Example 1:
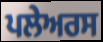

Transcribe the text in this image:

ਪਲੇਅਰਸ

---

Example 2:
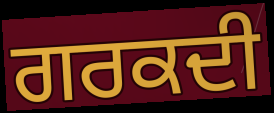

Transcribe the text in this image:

ਗਰਕਦੀ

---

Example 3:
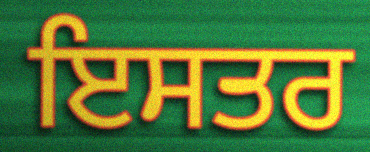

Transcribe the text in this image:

ਇਸਤਰ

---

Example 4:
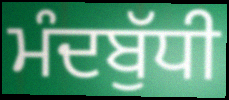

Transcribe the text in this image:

ਮੰਦਬੁੱਧੀ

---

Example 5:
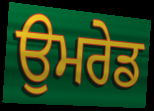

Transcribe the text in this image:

ਉਮਰੇਡ